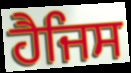
ਹੈਜਿਸ